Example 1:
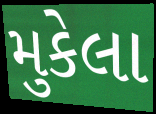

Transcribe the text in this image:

મુકેલા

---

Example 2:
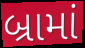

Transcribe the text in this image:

બ્રામાં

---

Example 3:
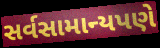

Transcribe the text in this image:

સર્વસામાન્યપણે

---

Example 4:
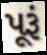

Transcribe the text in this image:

પૂરૂં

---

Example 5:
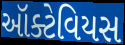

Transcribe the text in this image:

ઑક્ટેવિયસ